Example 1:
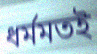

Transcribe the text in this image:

ধর্মমতই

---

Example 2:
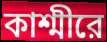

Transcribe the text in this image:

কাশ্মীরে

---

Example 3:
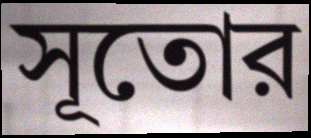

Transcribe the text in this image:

সূতোর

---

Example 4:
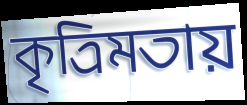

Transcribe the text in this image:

কৃত্রিমতায়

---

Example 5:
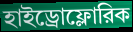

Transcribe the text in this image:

হাইড্রোফ্লোরিক